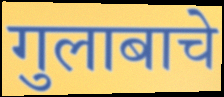
गुलाबाचे